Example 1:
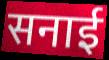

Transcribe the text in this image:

सनाई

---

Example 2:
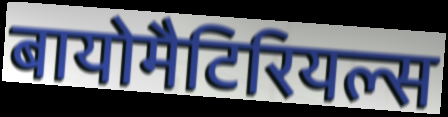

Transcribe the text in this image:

बायोमैटिरियल्स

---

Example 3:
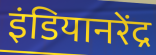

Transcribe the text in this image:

इंडियानरेंद्र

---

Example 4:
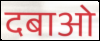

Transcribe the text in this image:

दबाओ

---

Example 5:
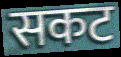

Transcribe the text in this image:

सकट